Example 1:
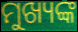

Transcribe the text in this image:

ମୁଖ୍ୟଙ୍କ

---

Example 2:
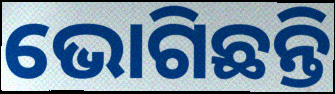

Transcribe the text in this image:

ଭୋଗିଛନ୍ତି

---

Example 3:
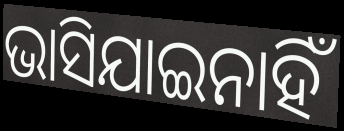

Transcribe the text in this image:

ଭାସିଯାଇନାହିଁ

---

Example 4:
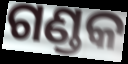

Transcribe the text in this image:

ଗଣ୍ଡକ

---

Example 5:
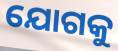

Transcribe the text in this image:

ଯୋଗକୁ